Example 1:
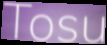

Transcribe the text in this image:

Tosu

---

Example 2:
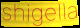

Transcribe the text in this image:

shigella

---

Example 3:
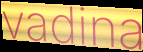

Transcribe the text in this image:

vadina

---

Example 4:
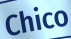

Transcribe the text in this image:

Chico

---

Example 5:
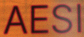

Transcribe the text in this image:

AESI